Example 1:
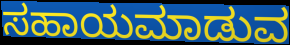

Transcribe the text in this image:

ಸಹಾಯಮಾಡುವ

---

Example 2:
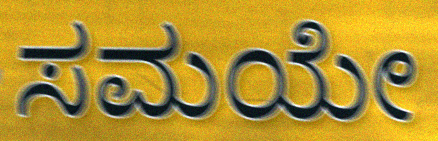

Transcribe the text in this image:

ಸಮಯೇ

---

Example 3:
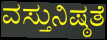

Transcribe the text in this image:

ವಸ್ತುನಿಷ್ಠತೆ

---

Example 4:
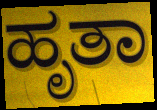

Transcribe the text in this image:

ಹೃತಾ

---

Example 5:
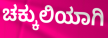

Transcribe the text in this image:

ಚಕ್ಕುಲಿಯಾಗಿ